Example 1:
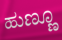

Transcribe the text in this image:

ಹುಣ್ಣೂ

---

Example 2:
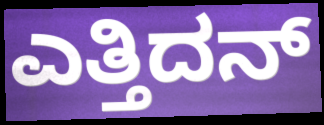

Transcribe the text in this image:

ಎತ್ತಿದನ್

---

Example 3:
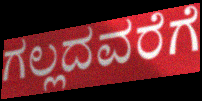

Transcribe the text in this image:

ಗಲ್ಲದವರೆಗೆ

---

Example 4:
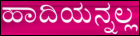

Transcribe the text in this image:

ಹಾದಿಯನ್ನಲ್ಲ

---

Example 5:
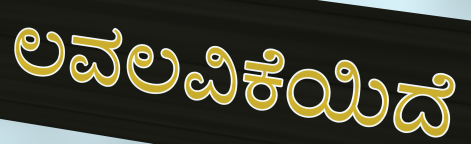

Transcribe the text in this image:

ಲವಲವಿಕೆಯಿದೆ